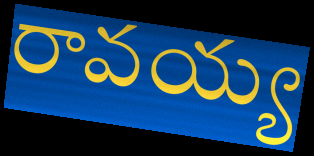
రావయ్య